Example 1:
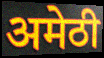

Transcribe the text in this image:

अमेठी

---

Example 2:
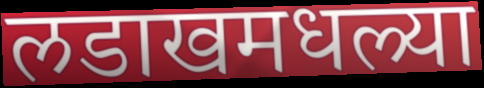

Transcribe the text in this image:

लडाखमधल्या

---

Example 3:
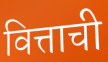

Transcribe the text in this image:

वित्ताची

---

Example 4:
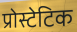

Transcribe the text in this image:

प्रोस्टेटिक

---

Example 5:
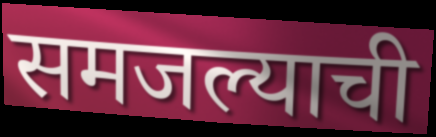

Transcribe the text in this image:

समजल्याची